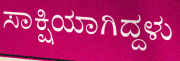
ಸಾಕ್ಷಿಯಾಗಿದ್ದಳು